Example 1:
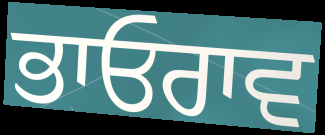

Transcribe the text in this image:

ਭਾਓਰਾਵ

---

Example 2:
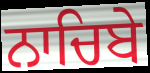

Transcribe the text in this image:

ਨਾਚਿਬੇ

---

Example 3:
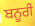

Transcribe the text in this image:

ਬਨੂਰੀ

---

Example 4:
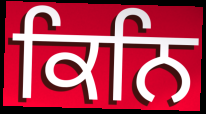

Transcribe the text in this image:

ਕਿਨਿ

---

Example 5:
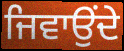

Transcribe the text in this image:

ਜਿਵਾਉਂਦੇ